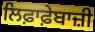
ਲਿਫ਼ਾਫ਼ੇਬਾਜ਼ੀ